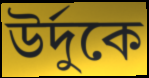
উর্দুকে